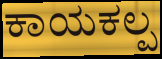
ಕಾಯಕಲ್ಪ